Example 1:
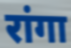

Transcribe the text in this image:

रांगा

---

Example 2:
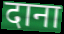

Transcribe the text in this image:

दाना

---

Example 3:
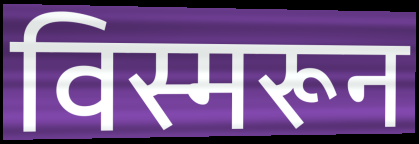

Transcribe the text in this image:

विस्मरून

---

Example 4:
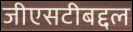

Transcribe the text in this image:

जीएसटीबद्दल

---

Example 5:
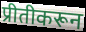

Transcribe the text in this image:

प्रीतीकरून